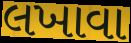
લખાવા